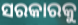
ସରକାରକୁ